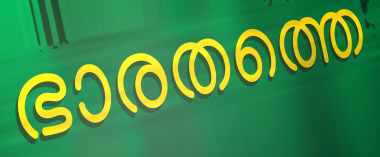
ഭാരതത്തെ